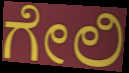
ಗೇಲಿ